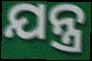
ଯନ୍ତ୍ର